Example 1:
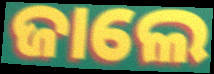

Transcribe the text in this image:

ଜାଲେ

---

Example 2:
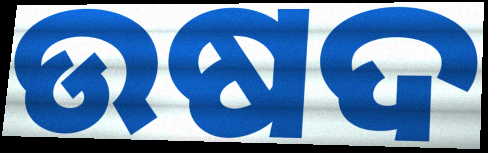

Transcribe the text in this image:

ଉଷଦ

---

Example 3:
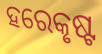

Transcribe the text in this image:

ହରେକୃଷ୍ଟ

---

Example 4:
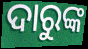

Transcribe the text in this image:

ଦାରୁଙ୍କ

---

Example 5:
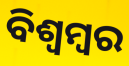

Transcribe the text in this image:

ବିଶ୍ଵମ୍ବର